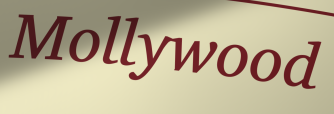
Mollywood